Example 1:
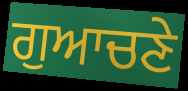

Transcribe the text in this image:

ਗੁਆਚਣੇ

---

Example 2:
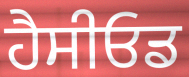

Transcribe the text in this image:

ਹੈਸੀਓਡ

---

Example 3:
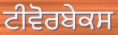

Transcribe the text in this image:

ਟੀਵੋਰਬੇਕਸ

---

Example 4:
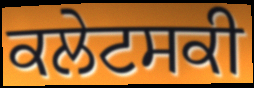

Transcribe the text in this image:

ਕਲੇਟਸਕੀ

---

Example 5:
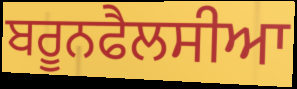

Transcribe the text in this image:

ਬਰੂਨਫੈਲਸੀਆ